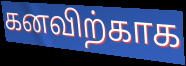
கனவிற்காக